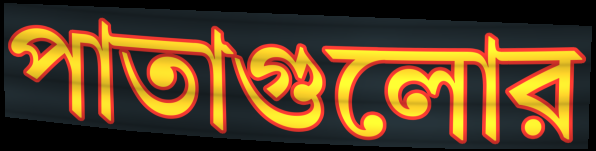
পাতাগুলোর